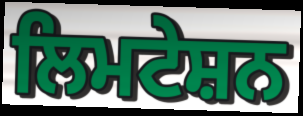
ਲਿਮਟੇਸ਼ਨ